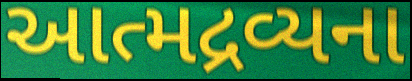
આત્મદ્રવ્યના